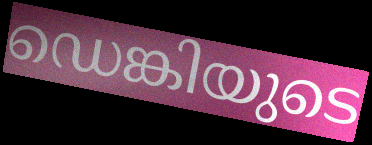
ഡെങ്കിയുടെ